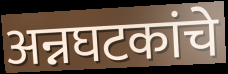
अन्नघटकांचे